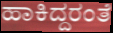
ಹಾಕಿದ್ದರಂತೆ